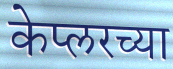
केप्लरच्या